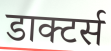
डाक्टर्स